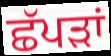
ਛੱਪੜਾਂ